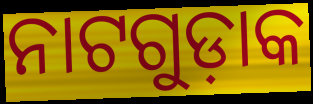
ନାଟଗୁଡ଼ାକ